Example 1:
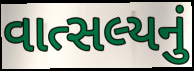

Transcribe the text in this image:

વાત્સલ્યનું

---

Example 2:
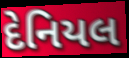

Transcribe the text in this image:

દેનિયલ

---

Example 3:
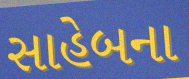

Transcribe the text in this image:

સાહેબના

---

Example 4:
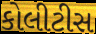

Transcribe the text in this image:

કોલીટીસ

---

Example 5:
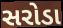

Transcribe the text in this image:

સરોડા